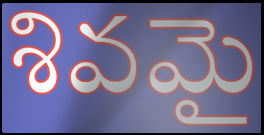
శివమై